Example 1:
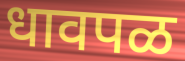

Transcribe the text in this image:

धावपळ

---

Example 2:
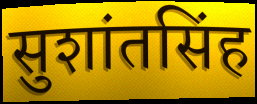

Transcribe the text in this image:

सुशांतसिंह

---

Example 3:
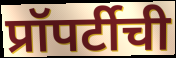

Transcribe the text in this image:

प्रॉपर्टीची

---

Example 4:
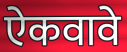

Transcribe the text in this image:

ऐकवावे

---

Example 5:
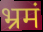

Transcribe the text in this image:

भ्रमं